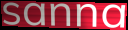
sanna